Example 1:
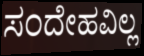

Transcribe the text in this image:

ಸಂದೇಹವಿಲ್ಲ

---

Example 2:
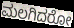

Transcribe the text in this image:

ಮಲಗಿದರೋ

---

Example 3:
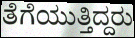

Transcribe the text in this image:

ತೆಗೆಯುತ್ತಿದ್ದರು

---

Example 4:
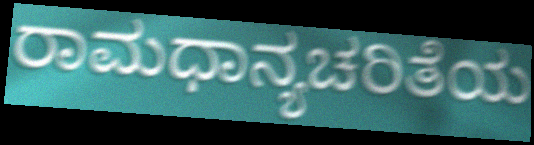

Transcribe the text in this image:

ರಾಮಧಾನ್ಯಚರಿತೆಯ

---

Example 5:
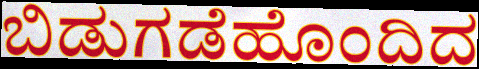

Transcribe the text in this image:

ಬಿಡುಗಡೆಹೊಂದಿದ